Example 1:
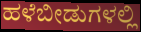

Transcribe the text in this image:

ಹಳೆಬೀಡುಗಳಲ್ಲಿ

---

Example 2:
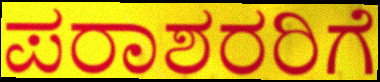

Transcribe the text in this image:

ಪರಾಶರರಿಗೆ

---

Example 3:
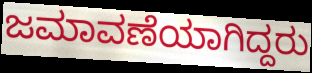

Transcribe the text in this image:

ಜಮಾವಣೆಯಾಗಿದ್ದರು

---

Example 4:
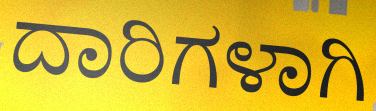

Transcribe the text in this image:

ದಾರಿಗಳಾಗಿ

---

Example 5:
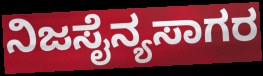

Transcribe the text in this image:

ನಿಜಸೈನ್ಯಸಾಗರ